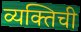
व्यक्तिची